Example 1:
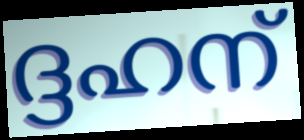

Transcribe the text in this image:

ദ്ദഹന്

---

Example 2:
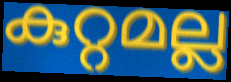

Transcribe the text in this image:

കുറ്റമല്ല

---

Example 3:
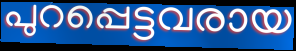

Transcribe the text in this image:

പുറപ്പെട്ടവരായ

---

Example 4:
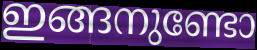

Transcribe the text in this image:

ഇങ്ങനുണ്ടോ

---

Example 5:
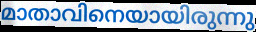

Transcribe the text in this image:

മാതാവിനെയായിരുന്നു